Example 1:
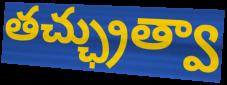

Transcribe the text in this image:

తచ్ఛ్రుత్వా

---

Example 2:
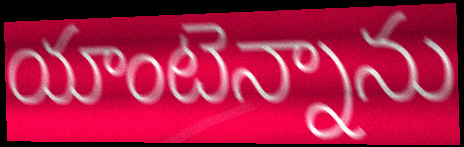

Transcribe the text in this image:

యాంటెన్నాను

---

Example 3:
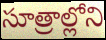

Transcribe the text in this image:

సూత్రాల్లోని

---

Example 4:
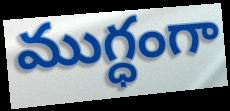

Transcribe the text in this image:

ముగ్ధంగా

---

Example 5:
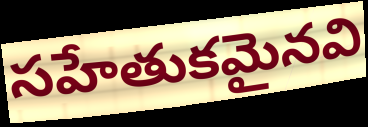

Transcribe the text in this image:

సహేతుకమైనవి